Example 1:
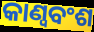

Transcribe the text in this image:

କାଣ୍ୱବଂଶ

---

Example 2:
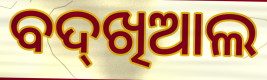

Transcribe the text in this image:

ବଦ୍‌ଖିଆଲ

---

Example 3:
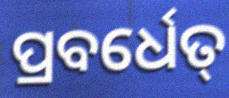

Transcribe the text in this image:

ପ୍ରବର୍ଧେତ୍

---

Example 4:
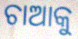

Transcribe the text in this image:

ଚାଆକୁ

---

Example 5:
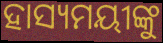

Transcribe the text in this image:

ହାସ୍ୟମୟୀଙ୍କୁ